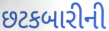
છટકબારીની